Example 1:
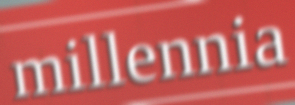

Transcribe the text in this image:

millennia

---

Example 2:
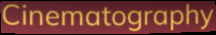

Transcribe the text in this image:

Cinematography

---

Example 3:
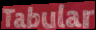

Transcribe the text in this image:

Tabular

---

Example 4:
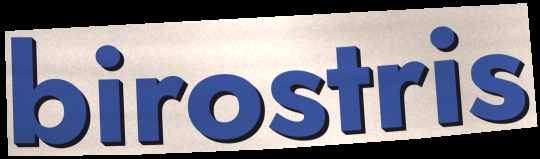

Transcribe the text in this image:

birostris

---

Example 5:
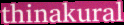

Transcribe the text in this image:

thinakural